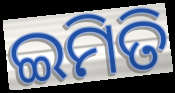
ଇମିତି